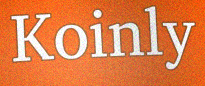
Koinly